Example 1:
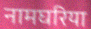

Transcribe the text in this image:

नामघरिया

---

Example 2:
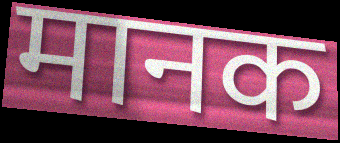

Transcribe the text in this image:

मानक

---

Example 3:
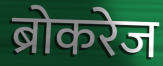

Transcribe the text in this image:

ब्रोकरेज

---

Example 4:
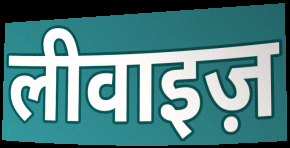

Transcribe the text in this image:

लीवाइज़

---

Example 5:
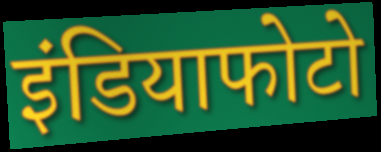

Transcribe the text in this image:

इंडियाफोटो